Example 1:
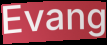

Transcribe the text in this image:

Evang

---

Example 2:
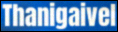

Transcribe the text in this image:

Thanigaivel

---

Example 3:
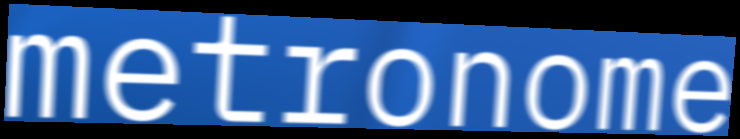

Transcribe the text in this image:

metronome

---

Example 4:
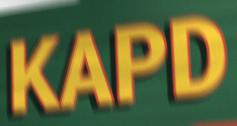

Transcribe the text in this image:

KAPD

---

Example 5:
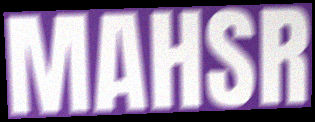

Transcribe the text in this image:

MAHSR